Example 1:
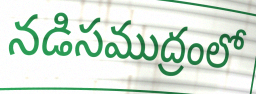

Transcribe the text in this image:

నడిసముద్రంలో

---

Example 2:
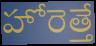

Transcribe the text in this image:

హోరెత్తే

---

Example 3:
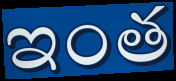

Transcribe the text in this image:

ఇంత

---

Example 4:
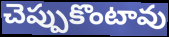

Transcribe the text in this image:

చెప్పుకొంటావు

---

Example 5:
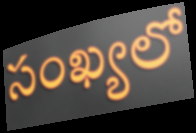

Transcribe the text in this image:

సంఖ్యలో